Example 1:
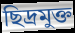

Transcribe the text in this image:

ছিদ্রমুক্ত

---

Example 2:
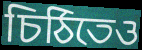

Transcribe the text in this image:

চিঠিতেও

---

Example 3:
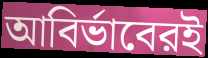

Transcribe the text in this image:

আবির্ভাবেরই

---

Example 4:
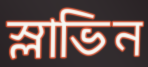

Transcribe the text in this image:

স্লাভিন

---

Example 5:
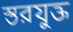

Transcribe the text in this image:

স্তরযুক্ত